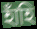
হাঁহি